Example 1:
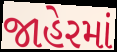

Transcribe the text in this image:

જાહેરમાં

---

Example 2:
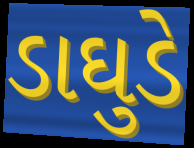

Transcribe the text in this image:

ડાઘુડે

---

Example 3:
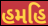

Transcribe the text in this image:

હમહિ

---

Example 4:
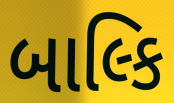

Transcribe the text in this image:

બાલ્કિ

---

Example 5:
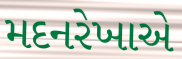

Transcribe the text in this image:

મદનરેખાએ